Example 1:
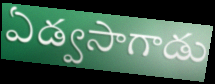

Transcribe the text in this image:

ఏడ్వసాగాడు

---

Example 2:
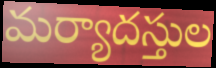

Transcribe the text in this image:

మర్యాదస్తుల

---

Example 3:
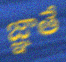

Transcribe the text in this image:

జ్ఞాతే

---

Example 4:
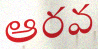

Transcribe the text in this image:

ఆరవ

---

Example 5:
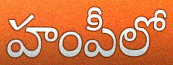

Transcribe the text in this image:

హంపీలో